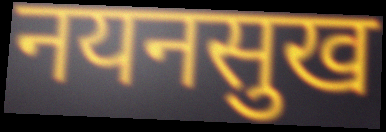
नयनसुख